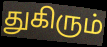
துகிரும்